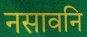
नसावनि